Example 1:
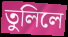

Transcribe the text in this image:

তুলিলে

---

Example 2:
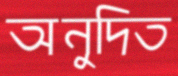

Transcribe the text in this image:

অনুদিত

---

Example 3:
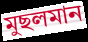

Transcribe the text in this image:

মুছলমান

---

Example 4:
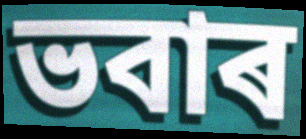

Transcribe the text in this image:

ভবাৰ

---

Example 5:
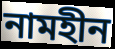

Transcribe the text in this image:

নামহীন